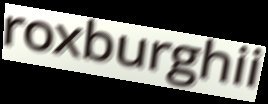
roxburghii